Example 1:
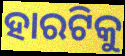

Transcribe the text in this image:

ହାରଟିକୁ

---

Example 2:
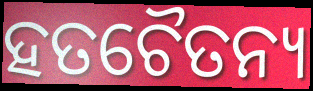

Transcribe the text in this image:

ହତଚୈତନ୍ୟ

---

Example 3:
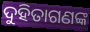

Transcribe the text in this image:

ଦୁହିତାଗଣଙ୍କ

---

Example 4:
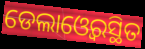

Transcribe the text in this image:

ଡେଲାଓ୍ବେରସ୍ଥିତ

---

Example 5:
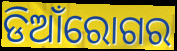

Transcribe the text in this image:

ଡିଆଁରୋଗର